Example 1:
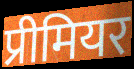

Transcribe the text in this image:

प्रीमियर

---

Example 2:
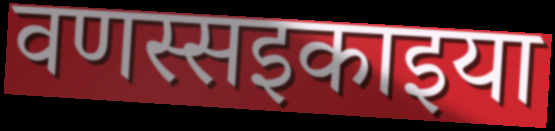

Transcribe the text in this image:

वणस्सइकाइया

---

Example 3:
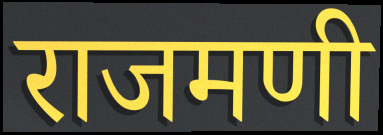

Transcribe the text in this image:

राजमणी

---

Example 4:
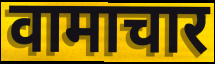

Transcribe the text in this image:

वामाचार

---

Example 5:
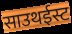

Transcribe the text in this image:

साउथईस्ट